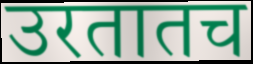
उरतातच